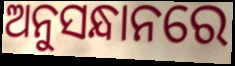
ଅନୁସନ୍ଧାନରେ